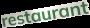
restaurant